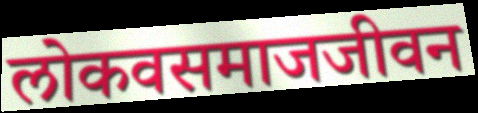
लोकवसमाजजीवन